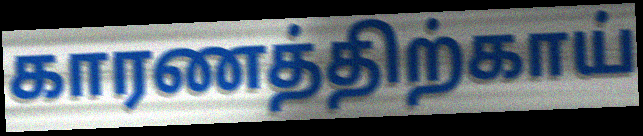
காரணத்திற்காய்